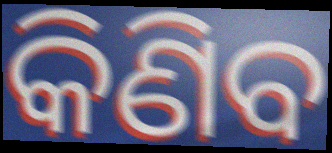
କିଣିବ